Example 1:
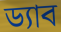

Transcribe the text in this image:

ড্যাব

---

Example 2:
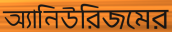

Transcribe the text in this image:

অ্যানিউরিজমের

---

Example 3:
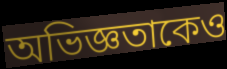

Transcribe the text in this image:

অভিজ্ঞতাকেও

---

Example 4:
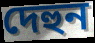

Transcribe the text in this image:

দেহুন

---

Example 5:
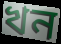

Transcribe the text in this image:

খন